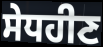
ਸੇਧਹੀਣ